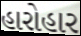
હારોહાર